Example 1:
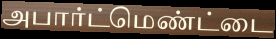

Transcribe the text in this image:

அபார்ட்மெண்ட்டை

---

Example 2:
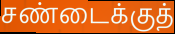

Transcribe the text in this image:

சண்டைக்குத்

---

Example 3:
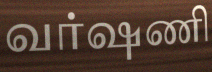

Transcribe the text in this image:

வர்ஷணி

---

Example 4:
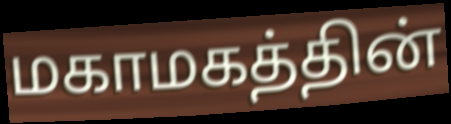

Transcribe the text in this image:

மகாமகத்தின்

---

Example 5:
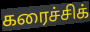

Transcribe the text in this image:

கரைச்சிக்